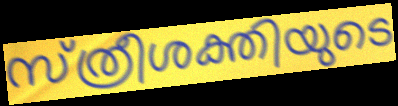
സ്‌ത്രീശക്തിയുടെ